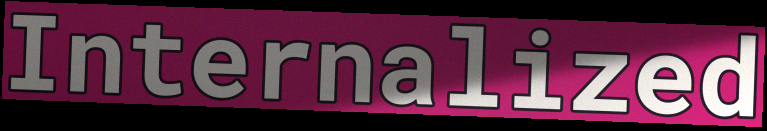
Internalized